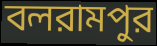
বলরামপুর